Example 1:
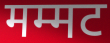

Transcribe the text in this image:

मम्मट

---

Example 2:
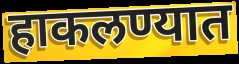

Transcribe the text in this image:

हाकलण्यात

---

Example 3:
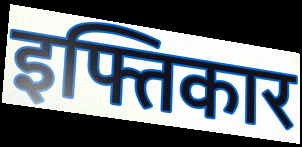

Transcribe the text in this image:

इफ्तिकार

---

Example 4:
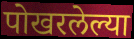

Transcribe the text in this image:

पोखरलेल्या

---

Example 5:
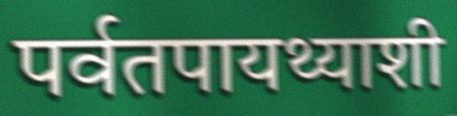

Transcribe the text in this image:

पर्वतपायथ्याशी